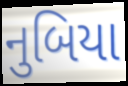
નુબિયા